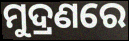
ମୁଦ୍ରଣରେ